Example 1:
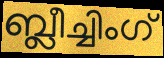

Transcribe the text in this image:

ബ്ലീച്ചിംഗ്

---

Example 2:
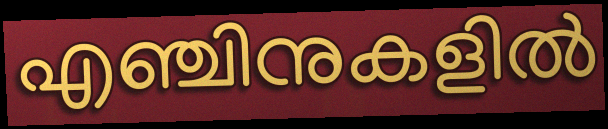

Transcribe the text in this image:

എഞ്ചിനുകളിൽ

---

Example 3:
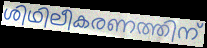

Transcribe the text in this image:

ശിഥിലീകരണത്തിന്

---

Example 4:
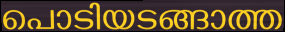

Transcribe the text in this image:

പൊടിയടങ്ങാത്ത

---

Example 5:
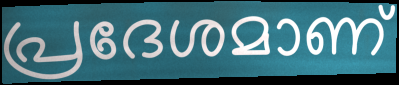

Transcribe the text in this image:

പ്രദേശമാണ്